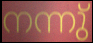
നന്നു്